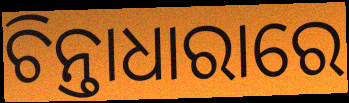
ଚିନ୍ତାଧାରାରେ